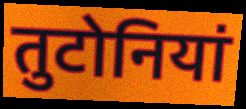
तुटोनियां